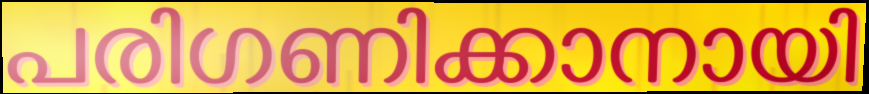
പരിഗണിക്കാനായി